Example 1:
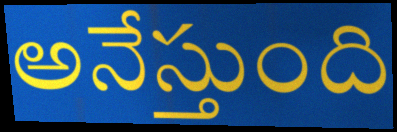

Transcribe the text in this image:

అనేస్తుంది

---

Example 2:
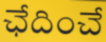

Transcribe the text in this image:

ఛేదించే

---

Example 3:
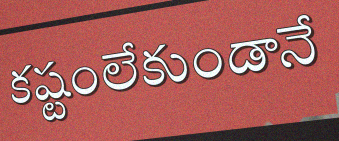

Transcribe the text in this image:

కష్టంలేకుండానే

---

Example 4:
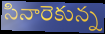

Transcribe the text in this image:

సినారెకున్న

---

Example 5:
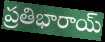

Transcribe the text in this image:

ప్రతిభారాయ్